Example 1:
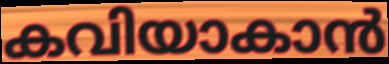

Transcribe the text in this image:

കവിയാകാൻ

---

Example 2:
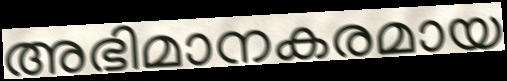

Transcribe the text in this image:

അഭിമാനകരമായ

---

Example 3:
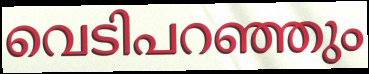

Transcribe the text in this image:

വെടിപറഞ്ഞും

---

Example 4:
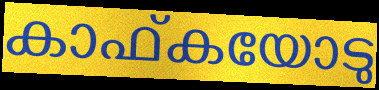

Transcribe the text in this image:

കാഫ്കയോടു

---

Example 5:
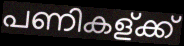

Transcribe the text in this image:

പണികള്ക്ക്